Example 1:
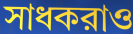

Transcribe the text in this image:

সাধকরাও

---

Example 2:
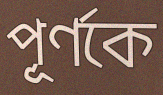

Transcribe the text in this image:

পূর্ণকে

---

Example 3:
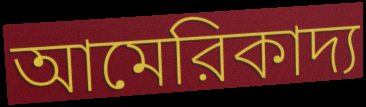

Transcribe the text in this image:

আমেরিকাদ্য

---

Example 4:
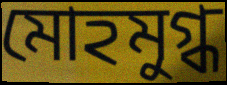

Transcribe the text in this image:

মোহমুগ্ধ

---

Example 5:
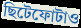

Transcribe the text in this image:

ছিটেফোটাও